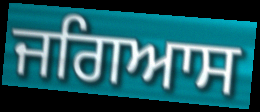
ਜਗਿਆਸ